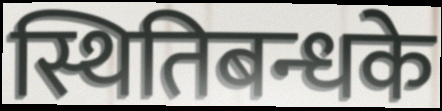
स्थितिबन्धके